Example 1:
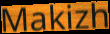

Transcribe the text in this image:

Makizh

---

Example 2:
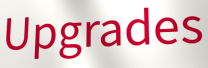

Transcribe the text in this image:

Upgrades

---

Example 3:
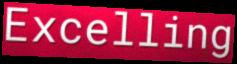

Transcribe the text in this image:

Excelling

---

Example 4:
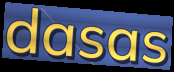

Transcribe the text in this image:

dasas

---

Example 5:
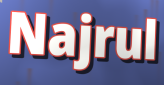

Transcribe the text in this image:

Najrul